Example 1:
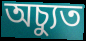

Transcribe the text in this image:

অচ্যুত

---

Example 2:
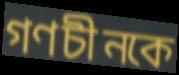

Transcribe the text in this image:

গণচীনকে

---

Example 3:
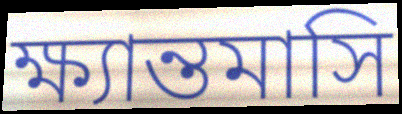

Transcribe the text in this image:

ক্ষ্যান্তমাসি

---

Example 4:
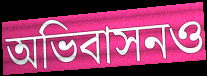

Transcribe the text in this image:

অভিবাসনও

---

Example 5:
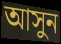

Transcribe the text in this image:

আসুন